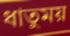
ধাতুময়